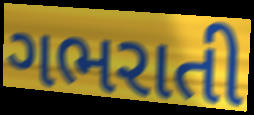
ગભરાતી